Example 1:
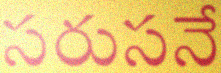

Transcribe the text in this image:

సరుసనే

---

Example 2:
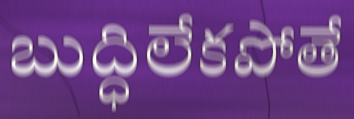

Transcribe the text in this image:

బుద్ధిలేకపోతే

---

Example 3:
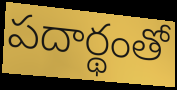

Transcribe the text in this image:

పదార్థంతో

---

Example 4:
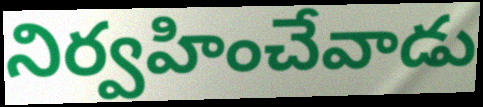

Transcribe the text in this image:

నిర్వహించేవాడు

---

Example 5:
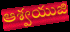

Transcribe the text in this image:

ఆశ్వయుజి